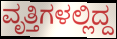
ವೃತ್ತಿಗಳಲ್ಲಿದ್ದ